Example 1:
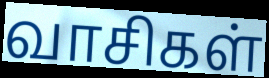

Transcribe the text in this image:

வாசிகள்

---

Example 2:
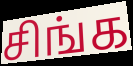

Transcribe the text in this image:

சிங்க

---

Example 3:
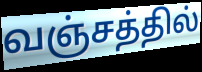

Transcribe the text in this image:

வஞ்சத்தில்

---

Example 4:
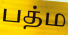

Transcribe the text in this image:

பத்ம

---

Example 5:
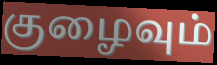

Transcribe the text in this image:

குழைவும்